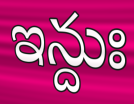
ఇన్దుః